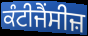
ਕੰਟੀਜੈਂਸੀਜ਼